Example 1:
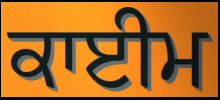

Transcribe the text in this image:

ਕਾਈਮ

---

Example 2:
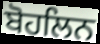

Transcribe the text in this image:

ਬੋਹਲਿਨ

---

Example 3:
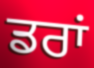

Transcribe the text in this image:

ਡਰਾਂ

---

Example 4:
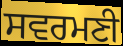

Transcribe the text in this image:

ਸਵਰਮਣੀ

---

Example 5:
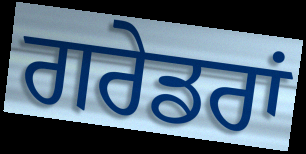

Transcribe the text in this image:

ਗਰੇਡਰਾਂ